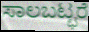
ಸಾಲಬಟ್ಟರೆ